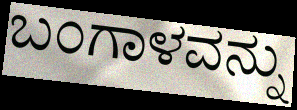
ಬಂಗಾಳವನ್ನು